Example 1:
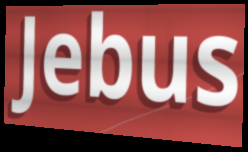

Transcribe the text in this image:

Jebus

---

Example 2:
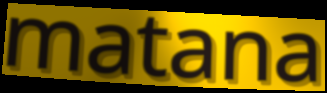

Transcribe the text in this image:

matana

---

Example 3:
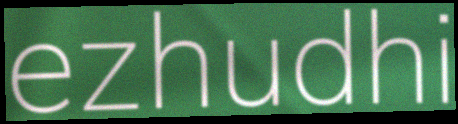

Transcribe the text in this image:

ezhudhi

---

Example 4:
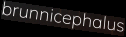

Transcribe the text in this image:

brunnicephalus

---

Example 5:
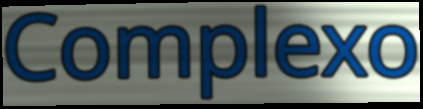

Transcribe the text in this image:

Complexo